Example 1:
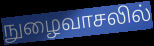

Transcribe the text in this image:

நுழைவாசலில்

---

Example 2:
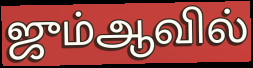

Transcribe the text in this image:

ஜும்ஆவில்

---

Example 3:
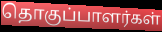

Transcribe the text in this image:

தொகுப்பாளர்கள்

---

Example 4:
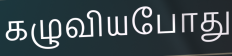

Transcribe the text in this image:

கழுவியபோது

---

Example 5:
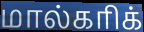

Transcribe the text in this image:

மால்கரிக்